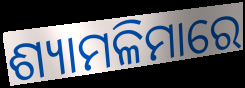
ଶ୍ୟାମଳିମାରେ